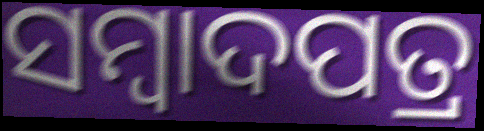
ସମ୍ୱାଦପତ୍ର